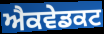
ਐਕਵੇਡਕਟ